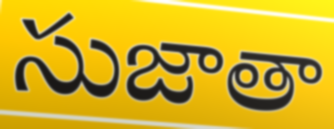
సుజాతా